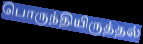
பொருந்தியிருத்தல்